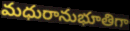
మధురానుభూతిగా